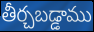
తీర్చబడ్డాము